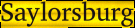
Saylorsburg